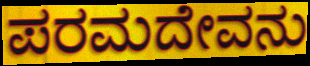
ಪರಮದೇವನು